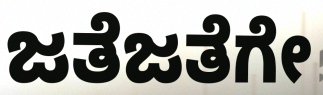
ಜತೆಜತೆಗೇ